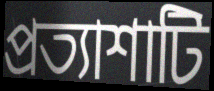
প্রত্যাশাটি